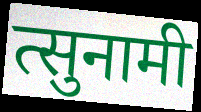
त्सुनामी